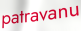
patravanu